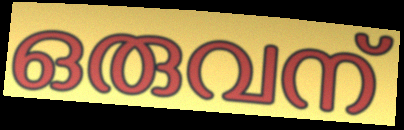
ഒരുവന്